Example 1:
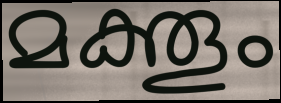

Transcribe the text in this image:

മക്തൂം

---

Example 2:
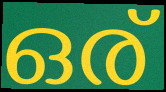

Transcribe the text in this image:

ഒര്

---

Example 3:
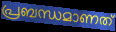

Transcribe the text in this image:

പ്രബന്ധമാണത്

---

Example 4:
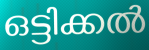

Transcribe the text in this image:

ഒട്ടിക്കൽ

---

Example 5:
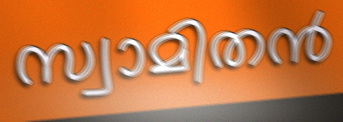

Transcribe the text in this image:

സ്വാമിതൻ